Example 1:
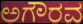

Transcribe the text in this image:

ಅಗೌರವ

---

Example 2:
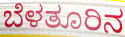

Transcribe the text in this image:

ಬೆಳತೂರಿನ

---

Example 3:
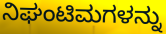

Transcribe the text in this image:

ನಿಘಂಟಿಮಗಳನ್ನು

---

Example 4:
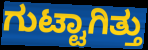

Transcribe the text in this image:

ಗುಟ್ಟಾಗಿತ್ತು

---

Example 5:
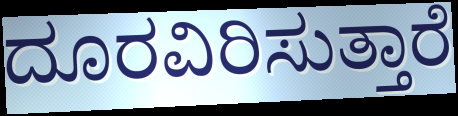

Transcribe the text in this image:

ದೂರವಿರಿಸುತ್ತಾರೆ